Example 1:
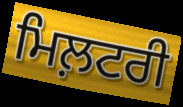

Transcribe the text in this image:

ਮਿਲ਼ਟਰੀ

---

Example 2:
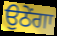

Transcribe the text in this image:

ਉਠੇਂਗਾ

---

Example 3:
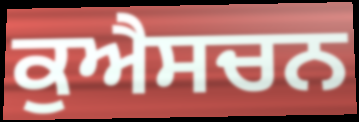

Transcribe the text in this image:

ਕੁਐਸਚਨ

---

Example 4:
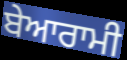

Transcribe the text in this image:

ਬੇਆਰਾਮੀ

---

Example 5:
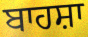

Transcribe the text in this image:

ਬਾਹਸ਼ਾ